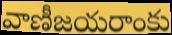
వాణీజయరాంకు